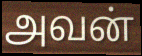
அவன்